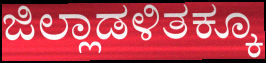
ಜಿಲ್ಲಾಡಳಿತಕ್ಕೂ